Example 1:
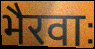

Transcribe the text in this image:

भैरवाः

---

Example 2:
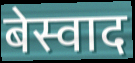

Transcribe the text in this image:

बेस्वाद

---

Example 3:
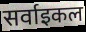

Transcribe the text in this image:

सर्वाइकल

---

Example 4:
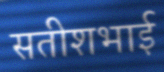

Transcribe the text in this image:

सतीशभाई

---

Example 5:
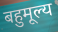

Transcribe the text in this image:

बहुमूल्य